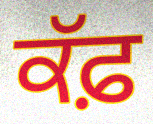
ਕੱਫ਼